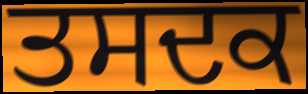
ਤਸਦਕ